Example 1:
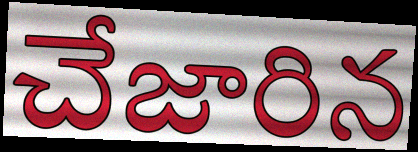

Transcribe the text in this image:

చేజారిన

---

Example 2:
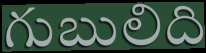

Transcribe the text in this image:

గుబులిది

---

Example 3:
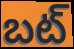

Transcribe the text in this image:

బట్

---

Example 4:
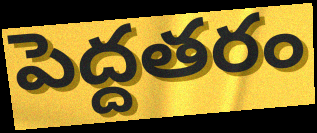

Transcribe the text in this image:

పెద్దతరం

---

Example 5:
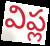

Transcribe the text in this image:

విప్ల